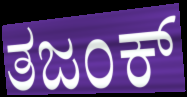
ತಜಂಕ್